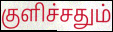
குளிச்சதும்